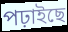
পঢ়াইছে